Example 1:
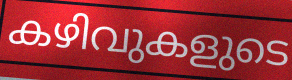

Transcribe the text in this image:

കഴിവുകളുടെ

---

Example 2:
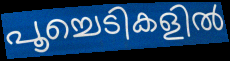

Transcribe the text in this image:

പൂച്ചെടികളിൽ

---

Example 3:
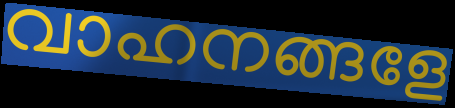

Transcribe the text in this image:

വാഹനങ്ങളേ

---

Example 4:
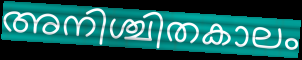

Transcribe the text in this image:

അനിശ്ചിതകാലം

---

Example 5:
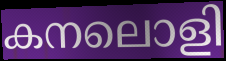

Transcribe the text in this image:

കനലൊളി